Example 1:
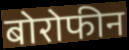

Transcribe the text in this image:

बोरोफीन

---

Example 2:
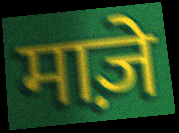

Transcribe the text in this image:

माज़े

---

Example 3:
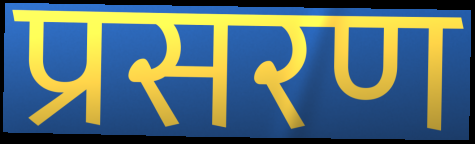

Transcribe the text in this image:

प्रसरण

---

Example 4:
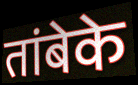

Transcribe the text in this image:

तांबेके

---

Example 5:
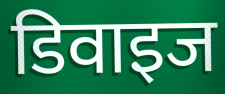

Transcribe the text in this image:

डिवाइज